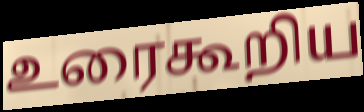
உரைகூறிய